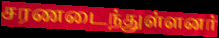
சரணடைந்துள்ளனர்